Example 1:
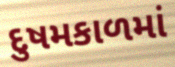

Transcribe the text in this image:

દુષમકાળમાં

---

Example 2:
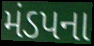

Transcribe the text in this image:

મંડપના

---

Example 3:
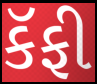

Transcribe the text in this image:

કૅફી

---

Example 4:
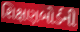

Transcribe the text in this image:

શિક્ષણબોર્ડની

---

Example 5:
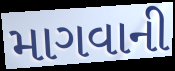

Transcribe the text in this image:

માગવાની